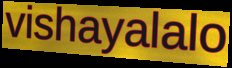
vishayalalo